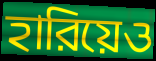
হারিয়েও